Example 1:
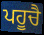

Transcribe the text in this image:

ਪਹੂਚੈ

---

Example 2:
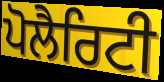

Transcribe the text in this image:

ਪੋਲੈਰਿਟੀ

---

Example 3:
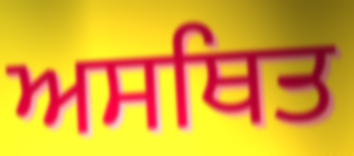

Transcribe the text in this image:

ਅਸਥਿਤ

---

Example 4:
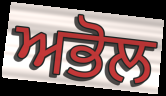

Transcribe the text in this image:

ਅਭੋਲ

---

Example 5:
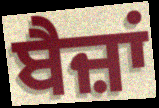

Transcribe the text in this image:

ਬੈਜ਼ਾਂ